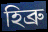
হিব্ৰু